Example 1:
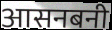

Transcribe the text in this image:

आसनबनी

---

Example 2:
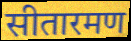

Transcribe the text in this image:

सीतारमण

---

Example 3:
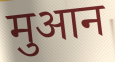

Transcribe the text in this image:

मुआन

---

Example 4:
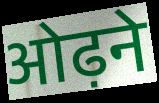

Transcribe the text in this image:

ओढ़ने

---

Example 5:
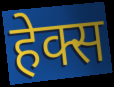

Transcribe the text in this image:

हेक्स